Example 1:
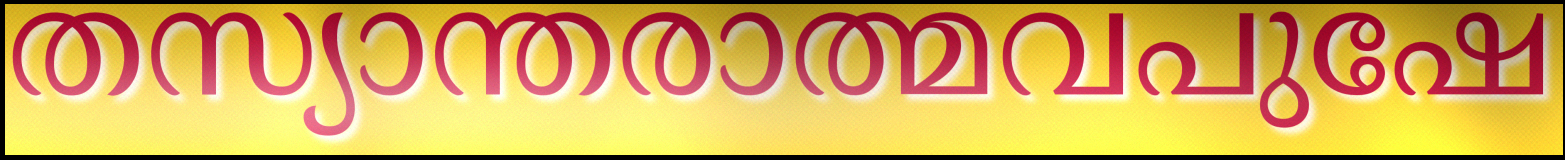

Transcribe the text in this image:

തസ്യാന്തരാത്മവപുഷേ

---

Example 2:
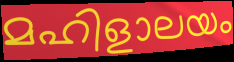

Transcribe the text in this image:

മഹിളാലയം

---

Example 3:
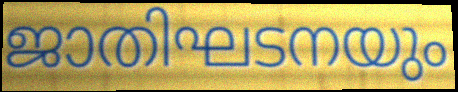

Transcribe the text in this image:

ജാതിഘടനയും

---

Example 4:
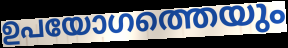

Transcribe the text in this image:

ഉപയോഗത്തെയും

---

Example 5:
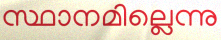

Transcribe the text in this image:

സ്ഥാനമില്ലെന്നു